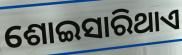
ଶୋଇସାରିଥାଏ